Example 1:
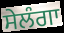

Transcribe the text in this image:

ਸੇਲੰਗਾ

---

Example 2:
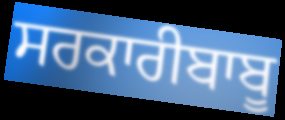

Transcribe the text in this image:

ਸਰਕਾਰੀਬਾਬੂ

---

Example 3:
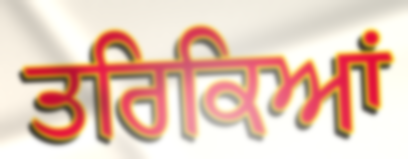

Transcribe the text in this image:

ਤਰਿਕਿਆਂ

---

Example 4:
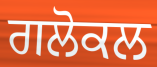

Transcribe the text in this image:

ਗਲੋਕਲ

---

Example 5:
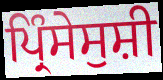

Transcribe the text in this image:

ਪ੍ਰਿੰਸੇਸੁਸ਼ੀ